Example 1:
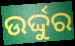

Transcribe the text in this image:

ଉର୍ଦ୍ଦୁର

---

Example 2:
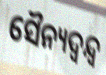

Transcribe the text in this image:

ସୈନ୍ୟଦ୍ୱନ୍ଦ୍ୱ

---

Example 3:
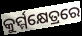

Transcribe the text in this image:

କୁର୍ମ୍ମକ୍ଷେତ୍ରରେ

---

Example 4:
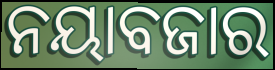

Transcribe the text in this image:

ନୟାବଜାର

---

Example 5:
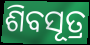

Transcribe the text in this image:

ଶିବସୂତ୍ର